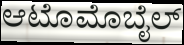
ಆಟೊಮೊಬೈಲ್